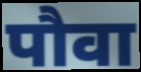
पौवा